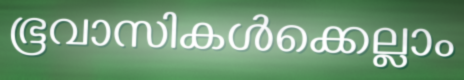
ഭൂവാസികൾക്കെല്ലാം